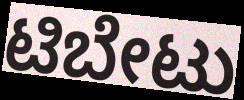
ಟಿಬೇಟು